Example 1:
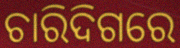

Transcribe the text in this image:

ଚାରିଦିଗରେ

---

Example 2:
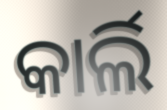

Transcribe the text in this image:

କାର୍ଲି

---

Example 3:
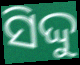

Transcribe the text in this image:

ସିଦ୍ଦୁ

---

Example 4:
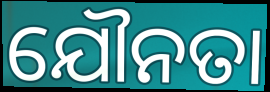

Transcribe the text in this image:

ଯୌନତା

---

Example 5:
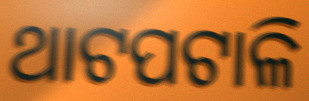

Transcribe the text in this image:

ଥାଟପଟାଳି